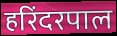
हरिंदरपाल